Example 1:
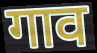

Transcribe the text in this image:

गाव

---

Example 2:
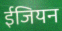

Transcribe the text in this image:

ईजियन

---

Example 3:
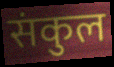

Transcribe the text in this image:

संकुल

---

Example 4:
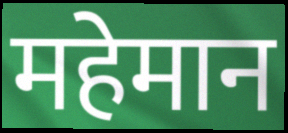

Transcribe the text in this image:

महेमान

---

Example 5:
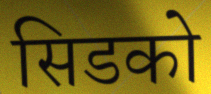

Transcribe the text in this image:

सिडको